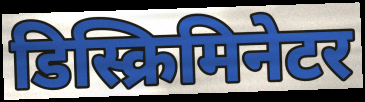
डिस्क्रिमिनेटर